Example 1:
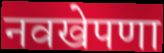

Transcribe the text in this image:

नवखेपणा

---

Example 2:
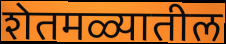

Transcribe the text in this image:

शेतमळ्यातील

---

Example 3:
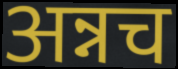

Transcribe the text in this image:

अन्नच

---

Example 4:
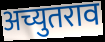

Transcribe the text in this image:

अच्युतराव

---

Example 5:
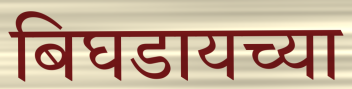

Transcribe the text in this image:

बिघडायच्या